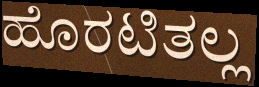
ಹೊರಟಿತಲ್ಲ